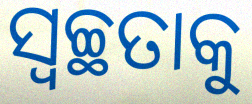
ସ୍ବଚ୍ଛତାକୁ